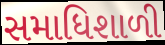
સમાધિશાળી